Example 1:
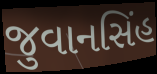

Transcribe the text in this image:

જુવાનસિંહ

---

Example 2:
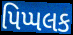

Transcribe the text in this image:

પિપ્પલક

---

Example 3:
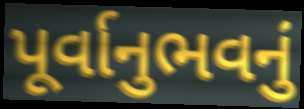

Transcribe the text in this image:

પૂર્વાનુભવનું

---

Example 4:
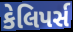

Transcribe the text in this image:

કેલિપર્સ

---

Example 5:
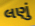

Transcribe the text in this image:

લણું